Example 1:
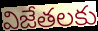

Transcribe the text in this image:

విజేతలకు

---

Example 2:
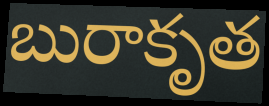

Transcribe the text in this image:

బురాకృత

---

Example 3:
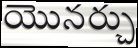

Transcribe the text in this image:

యొనర్చు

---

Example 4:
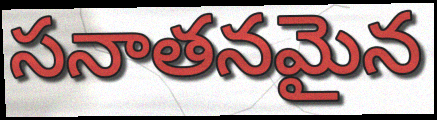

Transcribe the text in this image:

సనాతనమైన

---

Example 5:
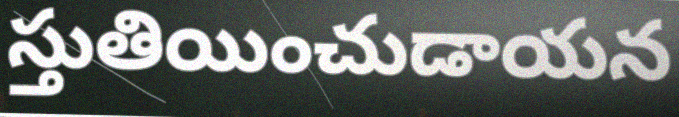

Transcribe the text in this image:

స్తుతియించుడాయన